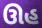
ઊહ